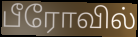
பீரோவில்